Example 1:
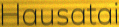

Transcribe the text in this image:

Hausatai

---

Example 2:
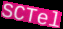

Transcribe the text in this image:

SCTel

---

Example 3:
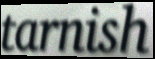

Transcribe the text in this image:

tarnish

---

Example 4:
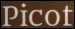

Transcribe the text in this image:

Picot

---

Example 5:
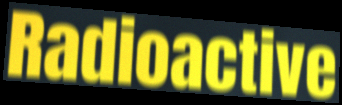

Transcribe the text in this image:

Radioactive